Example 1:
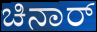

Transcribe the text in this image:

ಚಿನಾರ್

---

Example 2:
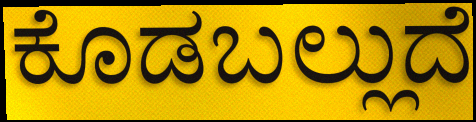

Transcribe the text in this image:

ಕೊಡಬಲ್ಲುದೆ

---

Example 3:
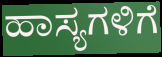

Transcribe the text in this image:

ಹಾಸ್ಯಗಳಿಗೆ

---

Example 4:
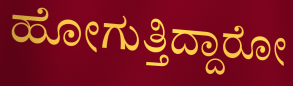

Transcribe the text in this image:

ಹೋಗುತ್ತಿದ್ದಾರೋ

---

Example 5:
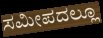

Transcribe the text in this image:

ಸಮೀಪದಲ್ಲೂ